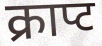
क्राप्ट